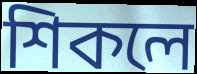
শিকলে